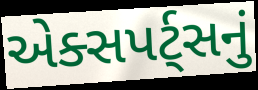
એક્સપર્ટ્સનું